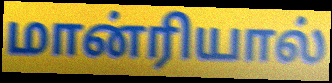
மான்ரியால்